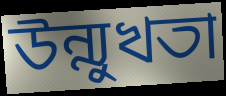
উন্মুখতা